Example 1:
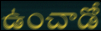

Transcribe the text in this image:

ఉంచాడో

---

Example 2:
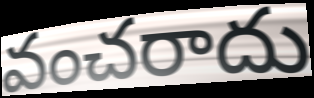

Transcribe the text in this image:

వంచరాదు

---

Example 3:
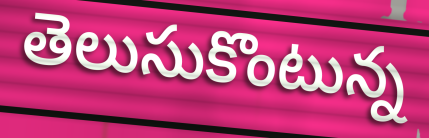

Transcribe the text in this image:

తెలుసుకొంటున్న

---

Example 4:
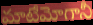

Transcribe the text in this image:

మాటేమోగానీ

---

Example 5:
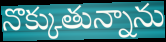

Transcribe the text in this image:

నొక్కుతున్నాను